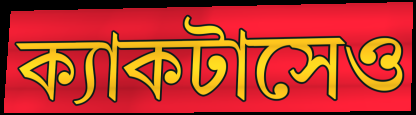
ক্যাকটাসেও